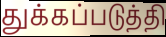
துக்கப்படுத்தி